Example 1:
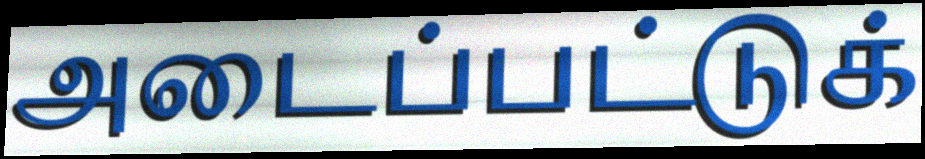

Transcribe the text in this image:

அடைப்பட்டுக்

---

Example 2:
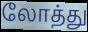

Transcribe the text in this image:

லோத்து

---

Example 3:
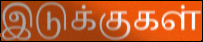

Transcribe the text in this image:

இடுக்குகள்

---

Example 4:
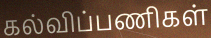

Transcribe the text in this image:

கல்விப்பணிகள்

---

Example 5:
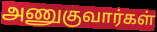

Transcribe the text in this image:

அணுகுவார்கள்